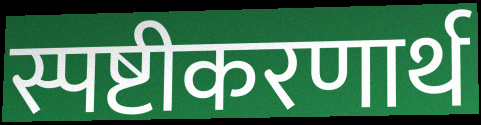
स्पष्टीकरणार्थ